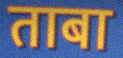
ताबा